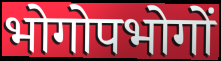
भोगोपभोगों